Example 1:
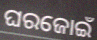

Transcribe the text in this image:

ଘରଜୋଇଁ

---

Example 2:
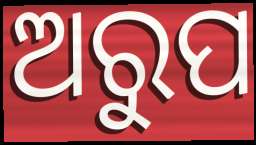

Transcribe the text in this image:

ଅରୁପ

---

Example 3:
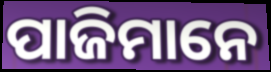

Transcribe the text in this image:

ପାଜିମାନେ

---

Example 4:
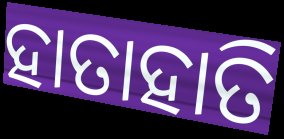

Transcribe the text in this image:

ହାତାହାତି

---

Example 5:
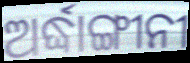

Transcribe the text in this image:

ଅର୍ଦ୍ଧାଙ୍ଗୀନୀ